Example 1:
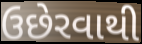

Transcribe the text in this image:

ઉછેરવાથી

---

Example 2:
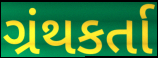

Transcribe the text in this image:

ગ્રંથકર્તા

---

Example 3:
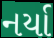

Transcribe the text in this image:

નર્યા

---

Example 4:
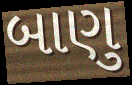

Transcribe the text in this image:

બાણુ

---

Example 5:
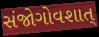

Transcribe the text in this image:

સંજોગોવશાત્